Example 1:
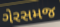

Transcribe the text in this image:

ગેરસમજ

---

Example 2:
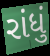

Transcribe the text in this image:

રાંધું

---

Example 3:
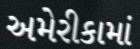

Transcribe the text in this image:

અમેરીકામાં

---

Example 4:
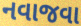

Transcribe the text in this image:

નવાજવા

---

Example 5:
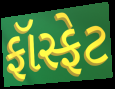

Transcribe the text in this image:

ફૉસ્ફેટ